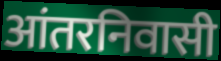
आंतरनिवासी